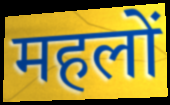
महलों